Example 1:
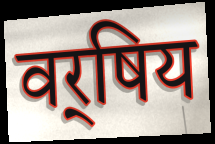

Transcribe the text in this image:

वर्षिय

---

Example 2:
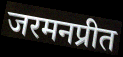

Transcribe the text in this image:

जरमनप्रीत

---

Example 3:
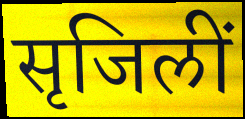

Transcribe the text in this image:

सृजिलीं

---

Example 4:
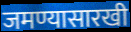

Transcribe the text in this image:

जमण्यासारखी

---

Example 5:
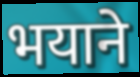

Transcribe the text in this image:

भयाने